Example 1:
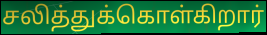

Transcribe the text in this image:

சலித்துக்கொள்கிறார்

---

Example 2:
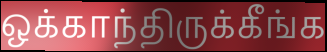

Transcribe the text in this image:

ஒக்காந்திருக்கீங்க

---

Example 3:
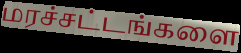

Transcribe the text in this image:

மரச்சட்டங்களை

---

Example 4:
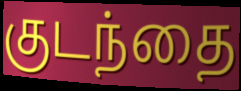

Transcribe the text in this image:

குடந்தை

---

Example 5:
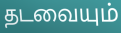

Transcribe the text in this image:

தடவையும்